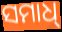
ସମାଧ୍